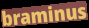
braminus